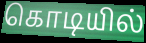
கொடியில்